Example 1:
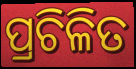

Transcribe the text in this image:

ପ୍ରଚିଳିତ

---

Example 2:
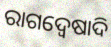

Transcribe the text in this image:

ରାଗଦ୍ୱେଷାଦି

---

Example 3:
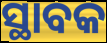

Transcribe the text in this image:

ସ୍ଥାବକ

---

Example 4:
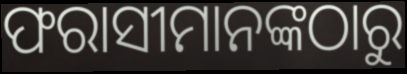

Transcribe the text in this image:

ଫରାସୀମାନଙ୍କଠାରୁ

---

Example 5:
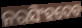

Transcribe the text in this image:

ନରସିଂହଦେବ